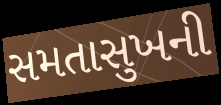
સમતાસુખની